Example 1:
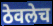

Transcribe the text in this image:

ठेवलेच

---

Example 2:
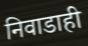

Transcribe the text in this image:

निवाडाही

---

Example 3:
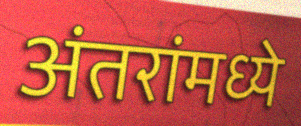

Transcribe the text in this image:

अंतरांमध्ये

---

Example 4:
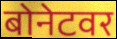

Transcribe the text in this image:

बोनेटवर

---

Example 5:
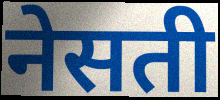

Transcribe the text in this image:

नेसती